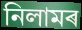
নিলামৰ